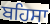
ਬਹਿਸਾ